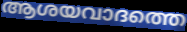
ആശയവാദത്തെ